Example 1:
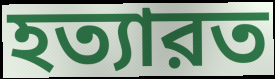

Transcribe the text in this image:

হত্যারত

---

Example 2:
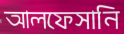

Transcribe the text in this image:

আলফেসানি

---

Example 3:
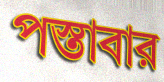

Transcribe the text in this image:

পস্তাবার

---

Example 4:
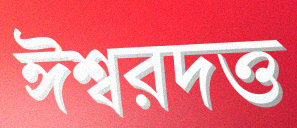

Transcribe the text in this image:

ঈশ্বরদত্ত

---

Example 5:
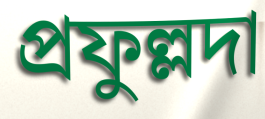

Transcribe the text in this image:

প্রফুল্লদা